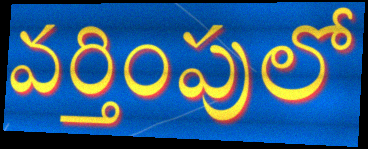
వర్తింపులో